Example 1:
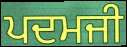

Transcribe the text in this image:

ਪਦਮਜੀ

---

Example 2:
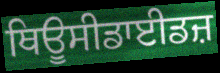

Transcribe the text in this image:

ਥਿਊਸੀਡਾਈਡਜ਼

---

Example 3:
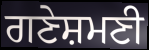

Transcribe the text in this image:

ਗਣੇਸ਼ਮਣੀ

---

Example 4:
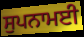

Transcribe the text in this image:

ਸੁਪਨਾਮਈ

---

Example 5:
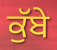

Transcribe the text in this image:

ਕੁੱਬੇ